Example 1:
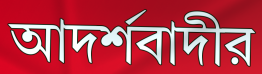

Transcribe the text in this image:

আদর্শবাদীর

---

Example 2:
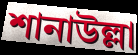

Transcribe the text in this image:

শানাউল্লা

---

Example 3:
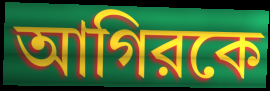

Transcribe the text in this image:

আগিরকে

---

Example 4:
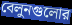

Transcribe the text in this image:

বেলুনগুলোর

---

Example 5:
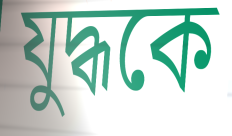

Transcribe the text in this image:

যুদ্ধকে